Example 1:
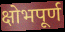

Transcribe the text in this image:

क्षोभपूर्ण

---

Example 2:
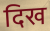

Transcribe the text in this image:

दिख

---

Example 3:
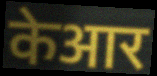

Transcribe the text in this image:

केआर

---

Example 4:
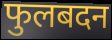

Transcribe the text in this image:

फुलबदन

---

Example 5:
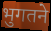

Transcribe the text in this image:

भुगतने